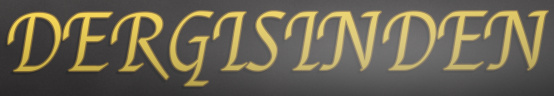
DERGISINDEN